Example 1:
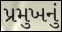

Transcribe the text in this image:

પ્રમુખનું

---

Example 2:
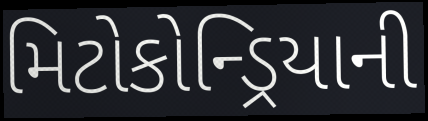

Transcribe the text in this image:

મિટોકોન્ડ્રિયાની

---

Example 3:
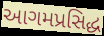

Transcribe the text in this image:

આગમપ્રસિદ્ધ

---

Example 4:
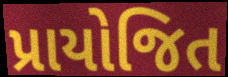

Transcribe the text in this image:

પ્રાયોજિત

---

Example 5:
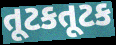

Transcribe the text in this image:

તૂટકતૂટક